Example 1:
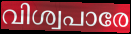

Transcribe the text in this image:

വിശ്വപാരേ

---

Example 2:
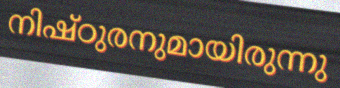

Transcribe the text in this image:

നിഷ്ഠുരനുമായിരുന്നു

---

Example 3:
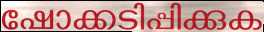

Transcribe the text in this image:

ഷോക്കടിപ്പിക്കുക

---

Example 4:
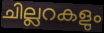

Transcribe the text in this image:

ചില്ലറകളും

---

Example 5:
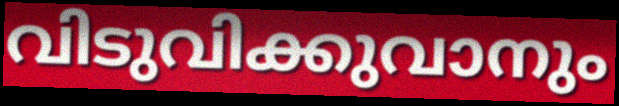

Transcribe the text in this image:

വിടുവിക്കുവാനും